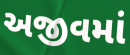
અજીવમાં